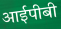
आईपीबी